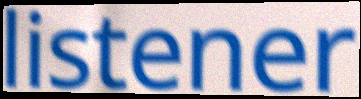
listener